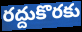
రద్దుకొరకు